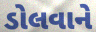
ડોલવાને